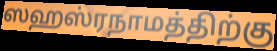
ஸஹஸ்ரநாமத்திற்கு